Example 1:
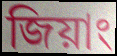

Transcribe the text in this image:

জিয়াং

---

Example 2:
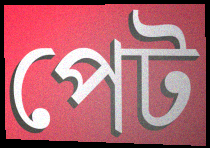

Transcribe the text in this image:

পেট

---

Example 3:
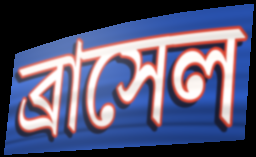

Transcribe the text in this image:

ব্রাসেল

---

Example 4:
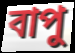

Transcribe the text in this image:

বাপু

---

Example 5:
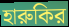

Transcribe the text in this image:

হারুকির